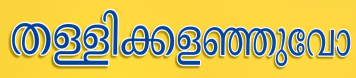
തള്ളിക്കളഞ്ഞുവോ